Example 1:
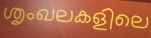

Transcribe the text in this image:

ശൃംഖലകളിലെ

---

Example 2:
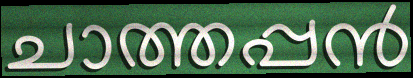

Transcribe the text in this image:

ചാത്തപ്പൻ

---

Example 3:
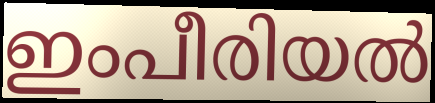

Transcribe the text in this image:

ഇംപീരിയൽ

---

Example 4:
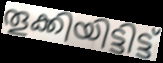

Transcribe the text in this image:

തൂക്കിയിട്ടിട്ട്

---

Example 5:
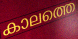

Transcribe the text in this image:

കാലത്തെ